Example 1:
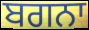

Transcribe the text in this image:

ਬਗਨਾ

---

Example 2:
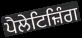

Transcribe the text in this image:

ਪੈਲੇਟਿਜ਼ਿੰਗ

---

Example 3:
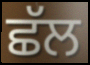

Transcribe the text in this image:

ਛੱਲ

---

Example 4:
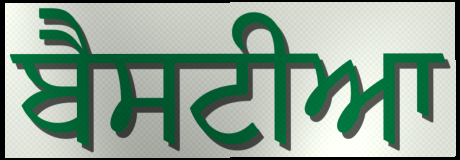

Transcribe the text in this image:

ਬੈਸਟੀਆ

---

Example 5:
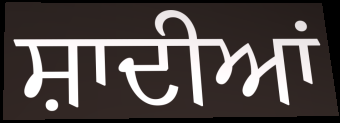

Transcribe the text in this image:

ਸ਼ਾਦੀਆਂ